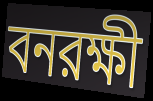
বনরক্ষী